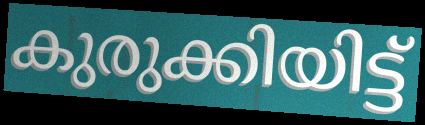
കുരുക്കിയിട്ട്